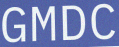
GMDC